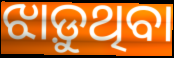
ଝାଡ଼ୁଥିବା